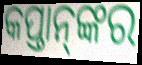
କପ୍ତାନ୍‌ଙ୍କର